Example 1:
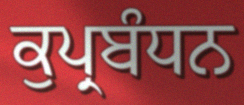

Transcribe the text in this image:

ਕੁਪ੍ਰਬੰਧਨ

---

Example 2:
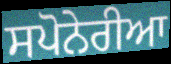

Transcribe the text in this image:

ਸਪੋਨੇਰੀਆ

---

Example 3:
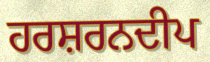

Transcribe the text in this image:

ਹਰਸ਼ਰਨਦੀਪ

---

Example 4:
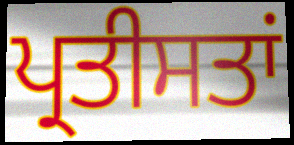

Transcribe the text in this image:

ਪ੍ਰਤੀਸਤਾਂ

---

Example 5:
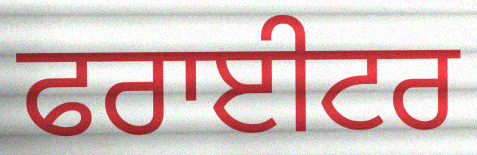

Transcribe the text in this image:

ਫਰਾਈਟਰ